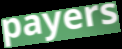
payers